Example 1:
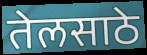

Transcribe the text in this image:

तेलसाठे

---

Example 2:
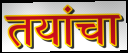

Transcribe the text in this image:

तयांचा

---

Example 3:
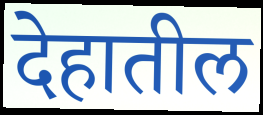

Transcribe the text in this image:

देहातील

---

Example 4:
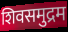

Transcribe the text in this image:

शिवसमुद्रम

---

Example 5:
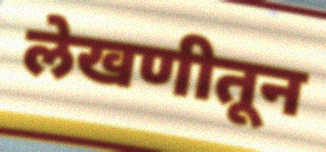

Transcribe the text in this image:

लेखणीतून